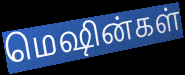
மெஷின்கள்